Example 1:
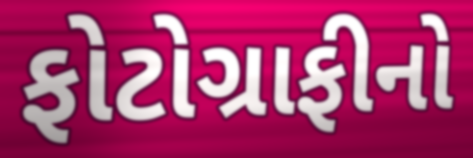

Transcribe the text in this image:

ફોટોગ્રાફીનો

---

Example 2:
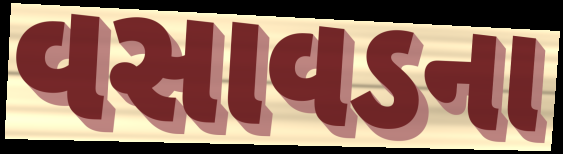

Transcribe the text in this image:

વસાવડના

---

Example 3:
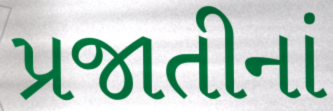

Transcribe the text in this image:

પ્રજાતીનાં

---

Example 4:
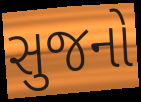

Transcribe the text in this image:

સુજનો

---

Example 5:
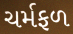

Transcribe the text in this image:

ચર્મફળ